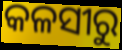
କଳସୀରୁ